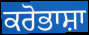
ਕਰੋਭਾਸ਼ਾ